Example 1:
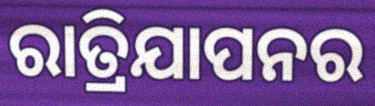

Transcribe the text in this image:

ରାତ୍ରିଯାପନର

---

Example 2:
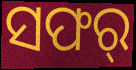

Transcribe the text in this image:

ସଫର୍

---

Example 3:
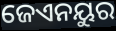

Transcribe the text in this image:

ଜେଏନୟୁର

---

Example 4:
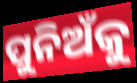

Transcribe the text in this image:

ପୁନିଅଁକୁ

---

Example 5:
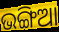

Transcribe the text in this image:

ଭଙ୍ଗିଆ